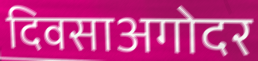
दिवसाअगोदर